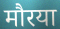
मौरया